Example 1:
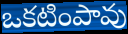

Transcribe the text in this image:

ఒకటింపావు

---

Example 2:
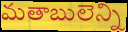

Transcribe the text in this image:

మతాబులెన్ని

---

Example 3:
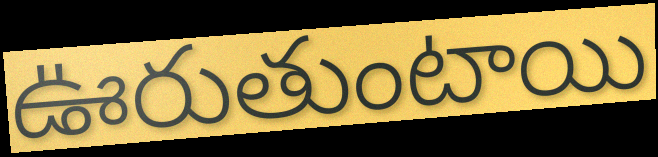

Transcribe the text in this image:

ఊరుతుంటాయి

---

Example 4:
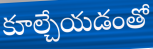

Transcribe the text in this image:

కూల్చేయడంతో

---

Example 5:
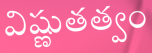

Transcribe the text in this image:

విష్ణుతత్వం